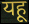
यहू